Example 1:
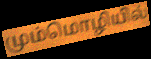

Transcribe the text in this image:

மும்மொழியில்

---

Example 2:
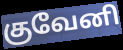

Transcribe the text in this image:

குவேனி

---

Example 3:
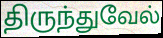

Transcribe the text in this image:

திருந்துவேல்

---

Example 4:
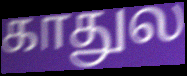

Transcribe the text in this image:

காதுல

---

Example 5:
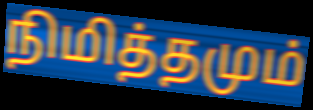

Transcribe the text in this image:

நிமித்தமும்